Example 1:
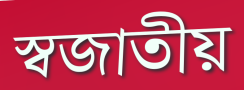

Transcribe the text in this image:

স্বজাতীয়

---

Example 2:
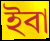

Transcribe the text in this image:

ইবা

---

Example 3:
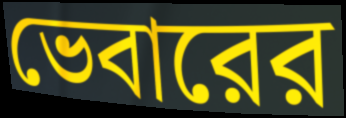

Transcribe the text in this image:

ভেবারের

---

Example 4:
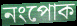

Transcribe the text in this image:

নংপোক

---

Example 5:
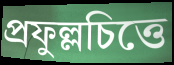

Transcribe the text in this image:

প্রফুল্লচিত্তে